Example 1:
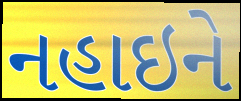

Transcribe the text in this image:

નહાઇને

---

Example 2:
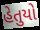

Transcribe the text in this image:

હેતુયો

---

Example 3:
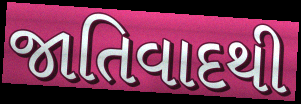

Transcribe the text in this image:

જાતિવાદથી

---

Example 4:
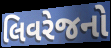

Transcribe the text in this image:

લિવરેજનો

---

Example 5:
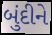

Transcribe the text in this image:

બુંદીને